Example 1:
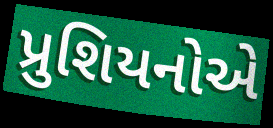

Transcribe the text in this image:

પ્રુશિયનોએ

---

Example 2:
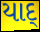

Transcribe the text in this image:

યાદ્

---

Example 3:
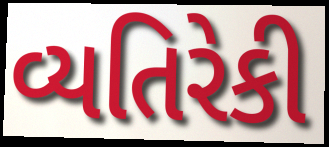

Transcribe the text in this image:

વ્યતિરેકી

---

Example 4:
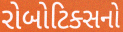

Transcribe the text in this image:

રોબોટિક્સનો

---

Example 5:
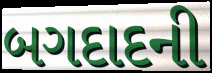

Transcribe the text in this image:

બગદાદની